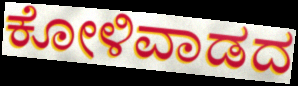
ಕೋಳಿವಾಡದ